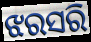
ଝରସରି